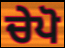
ਚੇਪੋ